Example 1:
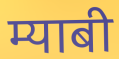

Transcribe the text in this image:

म्याबी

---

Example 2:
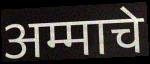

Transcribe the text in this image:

अम्माचे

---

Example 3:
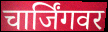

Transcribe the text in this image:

चार्जिंगवर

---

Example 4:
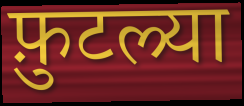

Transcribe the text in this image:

फ़ुटल्या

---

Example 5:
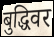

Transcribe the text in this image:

बुद्धिवर